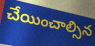
చేయించాల్సిన